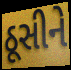
ઠૂસીને